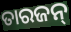
ତାରଜନ୍